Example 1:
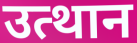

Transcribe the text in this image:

उत्थान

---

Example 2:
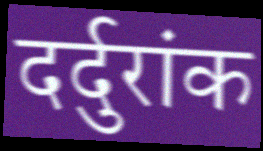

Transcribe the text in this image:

दर्दुरांक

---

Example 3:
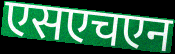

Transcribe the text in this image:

एसएचएन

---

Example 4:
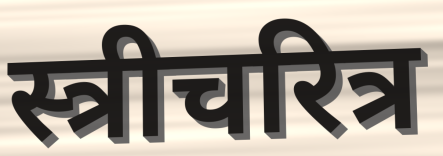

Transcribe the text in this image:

स्त्रीचरित्र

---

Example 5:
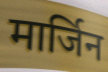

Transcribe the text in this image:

मार्जिन